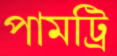
পামট্রি